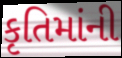
કૃતિમાંની